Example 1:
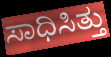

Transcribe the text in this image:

ಸಾಧಿಸಿತ್ತು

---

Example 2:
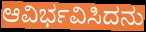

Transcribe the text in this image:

ಆವಿರ್ಭವಿಸಿದನು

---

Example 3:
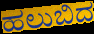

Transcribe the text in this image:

ಹಲುಬಿದ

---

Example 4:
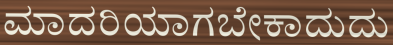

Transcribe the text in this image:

ಮಾದರಿಯಾಗಬೇಕಾದುದು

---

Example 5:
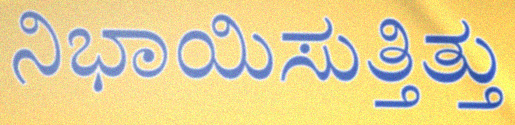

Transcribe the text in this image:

ನಿಭಾಯಿಸುತ್ತಿತ್ತು